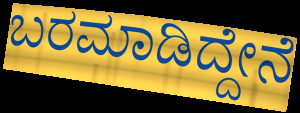
ಬರಮಾಡಿದ್ದೇನೆ